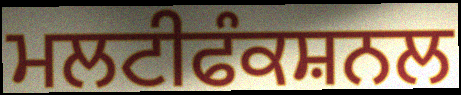
ਮਲਟੀਫੰਕਸ਼ਨਲ